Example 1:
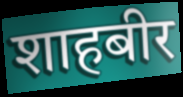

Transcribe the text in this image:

शाहबीर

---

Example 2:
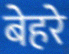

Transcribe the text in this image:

बेहरे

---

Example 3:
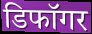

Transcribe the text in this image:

डिफॉगर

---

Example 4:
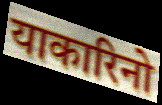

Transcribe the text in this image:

याकारिनो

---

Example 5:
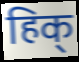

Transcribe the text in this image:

हिक्